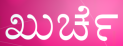
ಖುರ್ಚೆ